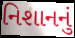
નિશાનનું